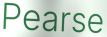
Pearse